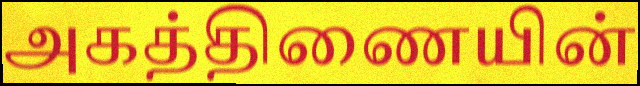
அகத்திணையின்